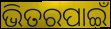
ଭିତରପାଇଁ